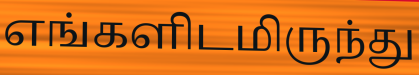
எங்களிடமிருந்து